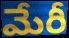
మేరీ